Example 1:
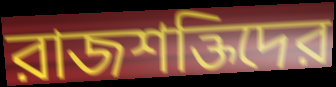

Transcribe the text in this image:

রাজশক্তিদের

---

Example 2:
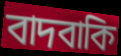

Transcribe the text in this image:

বাদবাকি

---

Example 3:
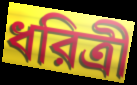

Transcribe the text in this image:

ধরিত্রী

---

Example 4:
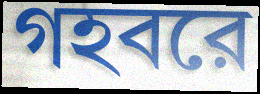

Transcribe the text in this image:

গহবরে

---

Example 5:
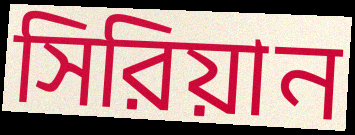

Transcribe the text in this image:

সিরিয়ান